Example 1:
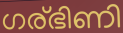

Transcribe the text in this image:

ഗര്ഭിണി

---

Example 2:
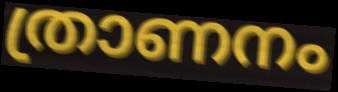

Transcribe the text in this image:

ത്രാണനം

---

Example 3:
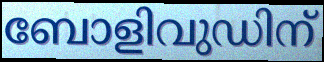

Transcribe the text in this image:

ബോളിവുഡിന്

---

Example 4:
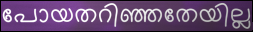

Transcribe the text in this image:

പോയതറിഞ്ഞതേയില്ല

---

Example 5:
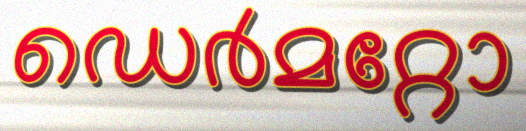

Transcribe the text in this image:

ഡെർമറ്റോ